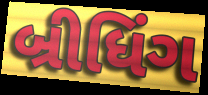
બ્રીધિંગ